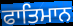
ਫਾਤਿਮਾਨ